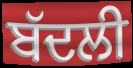
ਬੱਦਲੀ